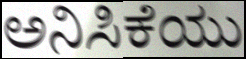
ಅನಿಸಿಕೆಯು